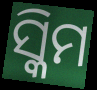
ସ୍କିମ